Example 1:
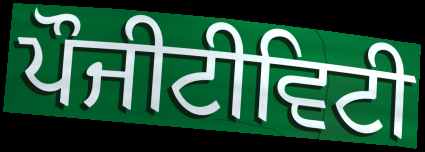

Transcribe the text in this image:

ਪੌਜੀਟੀਵਿਟੀ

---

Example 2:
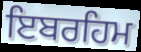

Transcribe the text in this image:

ਇਬਰਹਿਮ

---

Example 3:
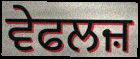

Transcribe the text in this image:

ਵੇਫਲਜ਼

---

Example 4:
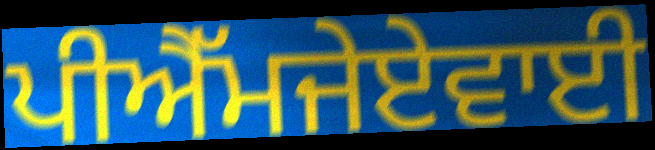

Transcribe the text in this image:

ਪੀਐੱਮਜੇਏਵਾਈ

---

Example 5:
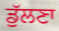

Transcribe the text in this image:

ਡੁੱਲਣਾ